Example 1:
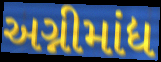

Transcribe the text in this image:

અગ્નીમાંદ્ય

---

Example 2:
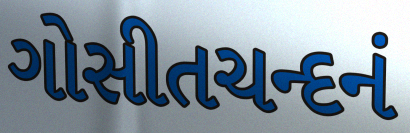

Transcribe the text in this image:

ગોસીતચન્દનં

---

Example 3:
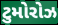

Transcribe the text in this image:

ટુમોરોઝ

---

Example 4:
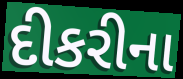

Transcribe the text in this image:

દીકરીના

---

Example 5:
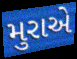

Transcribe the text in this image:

મુરાએ